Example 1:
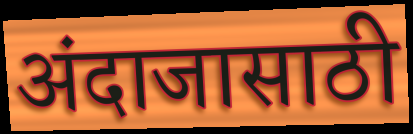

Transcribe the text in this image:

अंदाजासाठी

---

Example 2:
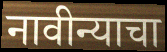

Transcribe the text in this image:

नावीन्याचा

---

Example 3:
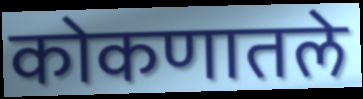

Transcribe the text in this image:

कोकणातले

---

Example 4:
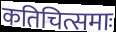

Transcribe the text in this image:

कतिचित्समाः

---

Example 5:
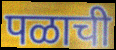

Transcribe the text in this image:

पळाची